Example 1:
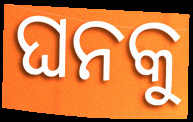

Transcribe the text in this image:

ଘନକୁ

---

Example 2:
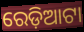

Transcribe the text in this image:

ରେଡ଼ିଆଟା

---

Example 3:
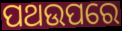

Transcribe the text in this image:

ପଥଉପରେ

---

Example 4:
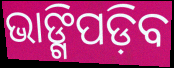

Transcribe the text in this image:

ଭାଙ୍ଗିପଡ଼ିବ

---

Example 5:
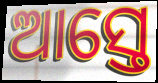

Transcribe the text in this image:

ଆସ୍ତେ